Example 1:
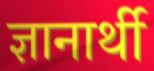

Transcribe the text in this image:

ज्ञानार्थी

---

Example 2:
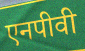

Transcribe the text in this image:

एनपीवी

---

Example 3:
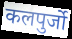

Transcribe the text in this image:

कलपुर्जो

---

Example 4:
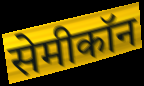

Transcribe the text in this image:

सेमीकॉन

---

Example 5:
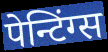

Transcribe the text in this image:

पेन्टिंग्स